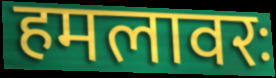
हमलावरः